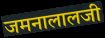
जमनालालजी